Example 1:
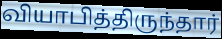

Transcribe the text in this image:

வியாபித்திருந்தார்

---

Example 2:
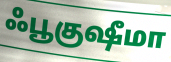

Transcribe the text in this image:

ஃபூகுஷீமா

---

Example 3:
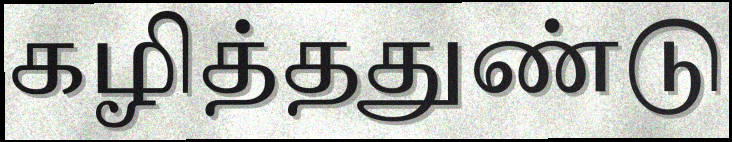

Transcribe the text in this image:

கழித்ததுண்டு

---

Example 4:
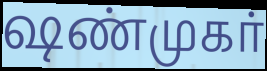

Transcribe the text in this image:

ஷண்முகர்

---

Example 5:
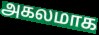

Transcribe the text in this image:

அகலமாக